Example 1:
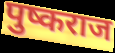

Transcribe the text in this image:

पुष्कराज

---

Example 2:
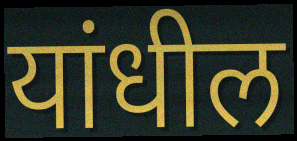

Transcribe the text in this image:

यांधील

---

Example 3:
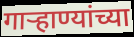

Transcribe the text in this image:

गाऱ्हाण्यांच्या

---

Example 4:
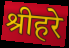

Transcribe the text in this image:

श्रीहरे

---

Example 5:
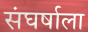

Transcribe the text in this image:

संघर्षाला